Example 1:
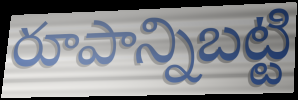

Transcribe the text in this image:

రూపాన్నిబట్టి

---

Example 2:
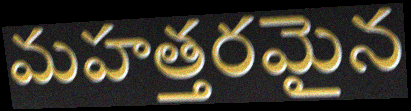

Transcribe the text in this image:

మహత్తరమైన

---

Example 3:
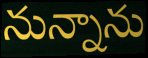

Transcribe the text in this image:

నున్నాను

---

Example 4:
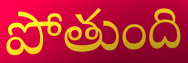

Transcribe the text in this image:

పోతుంది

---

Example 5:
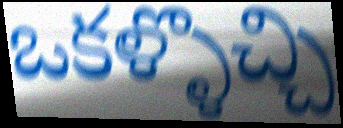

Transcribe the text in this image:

ఒకళ్ళొచ్చి